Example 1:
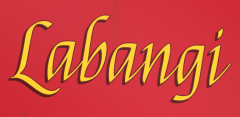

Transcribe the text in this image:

Labangi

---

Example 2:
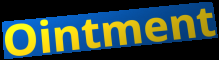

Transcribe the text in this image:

Ointment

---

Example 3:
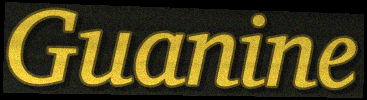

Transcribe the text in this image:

Guanine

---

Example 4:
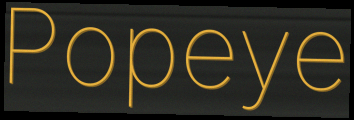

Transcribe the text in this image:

Popeye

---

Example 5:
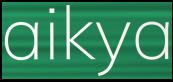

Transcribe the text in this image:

aikya